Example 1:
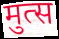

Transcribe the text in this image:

मुत्स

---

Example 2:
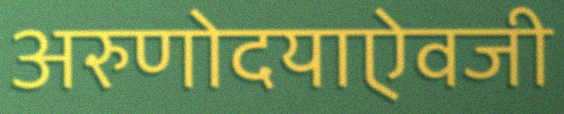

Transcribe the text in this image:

अरुणोदयाऐवजी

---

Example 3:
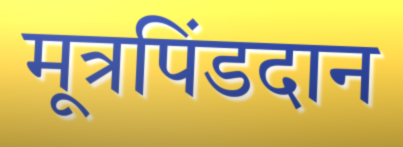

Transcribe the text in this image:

मूत्रपिंडदान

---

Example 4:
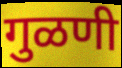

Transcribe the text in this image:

गुळणी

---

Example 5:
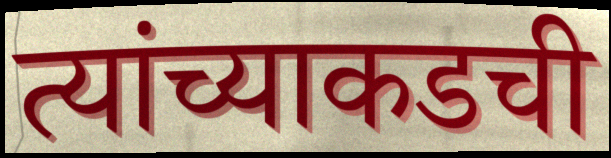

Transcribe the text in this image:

त्यांच्याकडची